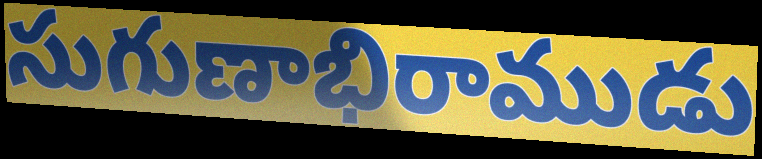
సుగుణాభిరాముడు